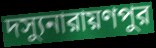
দস্যুনারায়ণপুর